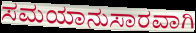
ಸಮಯಾನುಸಾರವಾಗಿ